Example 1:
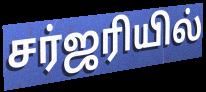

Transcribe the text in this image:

சர்ஜரியில்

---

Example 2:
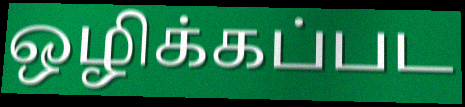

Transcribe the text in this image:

ஒழிக்கப்பட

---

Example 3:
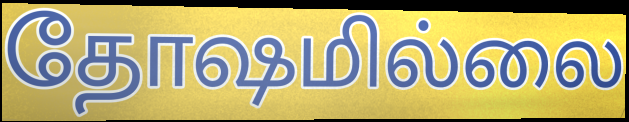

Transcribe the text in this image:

தோஷமில்லை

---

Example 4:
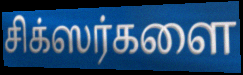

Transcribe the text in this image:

சிக்ஸர்களை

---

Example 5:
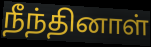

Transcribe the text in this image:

நீந்தினாள்